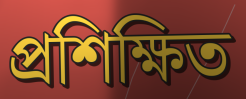
প্ৰশিক্ষিত